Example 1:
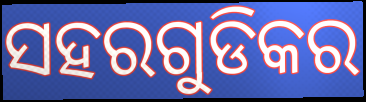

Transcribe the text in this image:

ସହରଗୁଡିକର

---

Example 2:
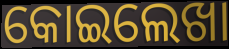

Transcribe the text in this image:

କୋଇଲେଖା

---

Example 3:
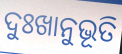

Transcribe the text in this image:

ଦୁଃଖାନୁଭୂତି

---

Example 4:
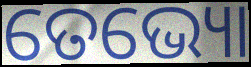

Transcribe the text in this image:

ତେଭ୍ୟୋ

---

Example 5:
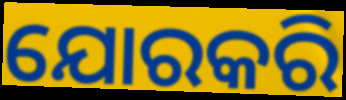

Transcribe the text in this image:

ଯୋରକରି